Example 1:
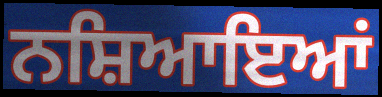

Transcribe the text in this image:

ਨਸ਼ਿਆਇਆਂ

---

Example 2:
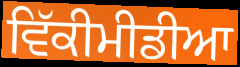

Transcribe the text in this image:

ਵਿੱਕੀਮੀਡੀਆ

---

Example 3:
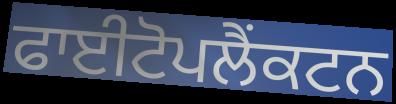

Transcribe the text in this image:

ਫਾਈਟੋਪਲੈਂਕਟਨ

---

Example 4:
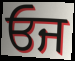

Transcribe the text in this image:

ਓਜ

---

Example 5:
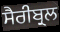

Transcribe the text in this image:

ਸੈਰੀਬ੍ਰਲ